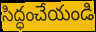
సిద్ధంచేయండి